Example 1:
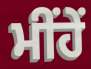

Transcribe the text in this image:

ਮੀਂਹੇਂ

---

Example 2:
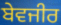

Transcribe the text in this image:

ਬੇਵਜੀਰ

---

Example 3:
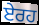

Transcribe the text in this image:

ਏਰਹ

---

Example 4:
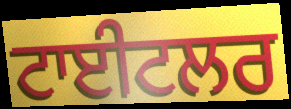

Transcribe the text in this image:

ਟਾਈਟਲਰ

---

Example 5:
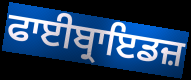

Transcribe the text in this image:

ਫਾਈਬ੍ਰਾਇਡਜ਼